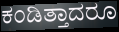
ಕಂಡಿತ್ತಾದರೂ